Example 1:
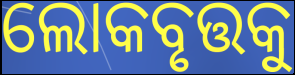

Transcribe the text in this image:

ଲୋକବୃତ୍ତକୁ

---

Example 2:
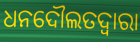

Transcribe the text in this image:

ଧନଦୌଲତଦ୍ଵାରା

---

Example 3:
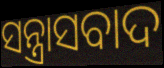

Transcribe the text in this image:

ସନ୍ତ୍ରାସବାଦ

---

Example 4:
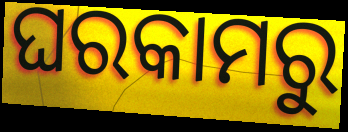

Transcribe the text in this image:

ଘରକାମରୁ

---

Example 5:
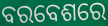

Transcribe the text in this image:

ବରବେଶରେ